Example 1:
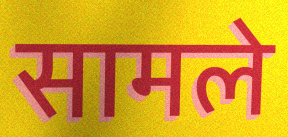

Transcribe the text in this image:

सामले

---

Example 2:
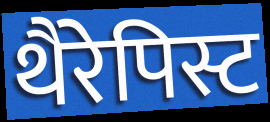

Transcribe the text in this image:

थैरेपिस्ट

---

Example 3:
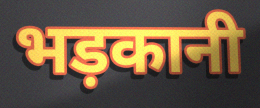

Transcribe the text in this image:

भड़कानी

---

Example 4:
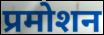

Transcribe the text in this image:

प्रमोशन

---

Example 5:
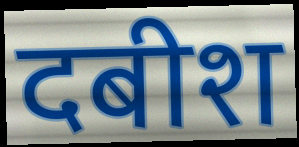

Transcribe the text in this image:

दबीश